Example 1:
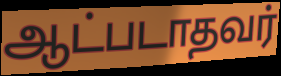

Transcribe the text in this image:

ஆட்படாதவர்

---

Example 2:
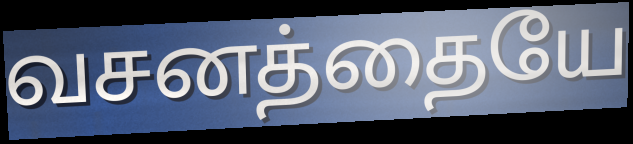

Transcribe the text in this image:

வசனத்தையே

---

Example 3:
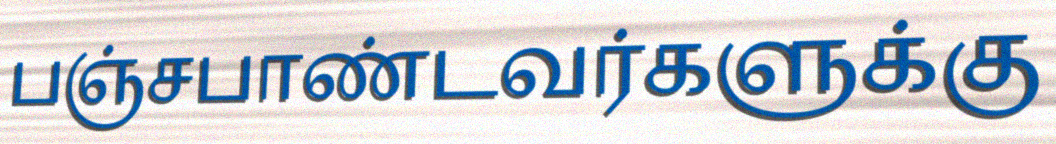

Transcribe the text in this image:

பஞ்சபாண்டவர்களுக்கு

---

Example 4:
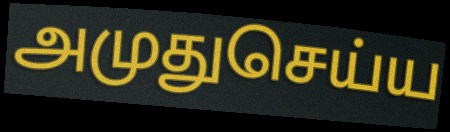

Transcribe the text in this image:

அமுதுசெய்ய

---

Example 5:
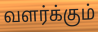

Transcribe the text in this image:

வளர்க்கும்